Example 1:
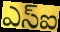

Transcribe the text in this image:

ఎస్ఐ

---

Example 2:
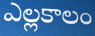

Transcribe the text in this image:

ఎల్లకాలం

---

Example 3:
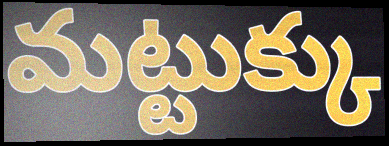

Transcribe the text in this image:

మట్టుక్కు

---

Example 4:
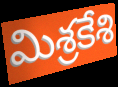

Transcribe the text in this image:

మిశ్రకేశి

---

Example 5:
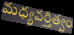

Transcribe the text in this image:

మధ్యవర్తిత్వం